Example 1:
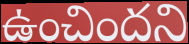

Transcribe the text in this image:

ఉంచిందని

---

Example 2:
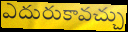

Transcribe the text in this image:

ఎదురుకావచ్చు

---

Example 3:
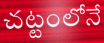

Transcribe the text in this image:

చట్టంలోనే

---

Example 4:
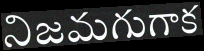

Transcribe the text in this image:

నిజమగుగాక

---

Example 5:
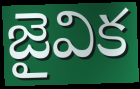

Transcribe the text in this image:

జైవిక